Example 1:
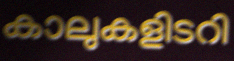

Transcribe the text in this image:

കാലുകളിടറി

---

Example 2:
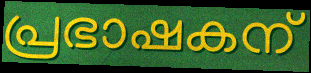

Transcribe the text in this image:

പ്രഭാഷകന്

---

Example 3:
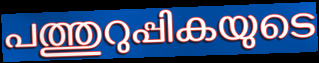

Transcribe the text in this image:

പത്തുറുപ്പികയുടെ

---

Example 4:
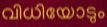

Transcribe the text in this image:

വിധിയോടും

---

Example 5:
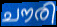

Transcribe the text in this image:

ചൗരി